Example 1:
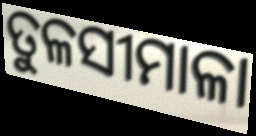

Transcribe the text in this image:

ତୁଳସୀମାଳା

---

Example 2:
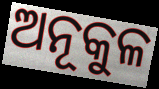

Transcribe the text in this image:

ଅନୂକୁଳ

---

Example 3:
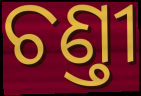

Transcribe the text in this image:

ଚଣ୍ତୀ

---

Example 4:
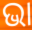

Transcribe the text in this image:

ଭା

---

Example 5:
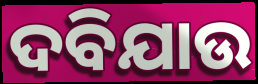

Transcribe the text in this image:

ଦବିଯାଉ